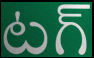
టగ్